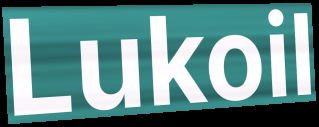
Lukoil